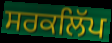
ਸਰਕਲਿੱਪ